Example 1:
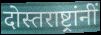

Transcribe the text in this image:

दोस्तराष्ट्रांनीं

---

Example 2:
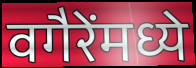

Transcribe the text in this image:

वगैरेंमध्ये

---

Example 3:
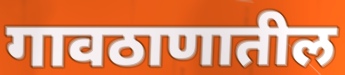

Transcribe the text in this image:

गावठाणातील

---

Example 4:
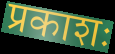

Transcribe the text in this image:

प्रकाशः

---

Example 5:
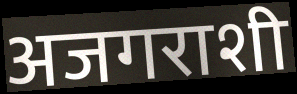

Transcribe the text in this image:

अजगराशी